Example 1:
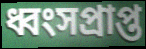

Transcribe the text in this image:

ধ্বংসপ্ৰাপ্ত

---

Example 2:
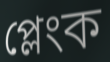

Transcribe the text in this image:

প্লেংক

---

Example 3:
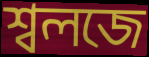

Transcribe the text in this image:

শ্বলজে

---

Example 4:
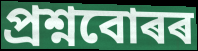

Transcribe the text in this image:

প্ৰশ্নবোৰৰ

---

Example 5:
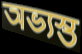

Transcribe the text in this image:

অভ্যস্ত